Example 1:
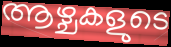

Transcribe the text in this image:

ആഴ്ചകളുടെ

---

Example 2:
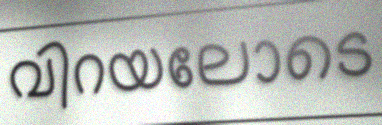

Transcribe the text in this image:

വിറയലോടെ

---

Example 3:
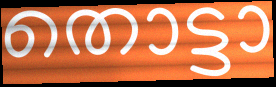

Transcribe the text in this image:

തൊട്ടാ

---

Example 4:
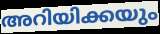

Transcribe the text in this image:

അറിയിക്കയും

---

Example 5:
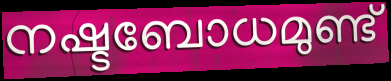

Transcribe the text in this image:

നഷ്ടബോധമുണ്ട്